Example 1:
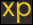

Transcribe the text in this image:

xp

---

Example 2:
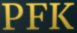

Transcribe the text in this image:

PFK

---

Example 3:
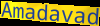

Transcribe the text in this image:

Amadavad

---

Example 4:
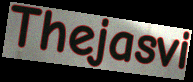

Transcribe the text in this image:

Thejasvi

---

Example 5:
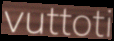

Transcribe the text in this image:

vuttoti